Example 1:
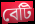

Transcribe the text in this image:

বেটি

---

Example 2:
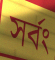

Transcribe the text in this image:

সর্বং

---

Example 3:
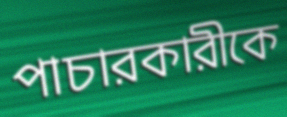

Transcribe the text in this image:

পাচারকারীকে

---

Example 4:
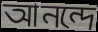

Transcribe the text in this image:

আনন্দে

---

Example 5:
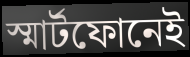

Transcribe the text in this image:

স্মার্টফোনেই